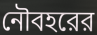
নৌবহরের